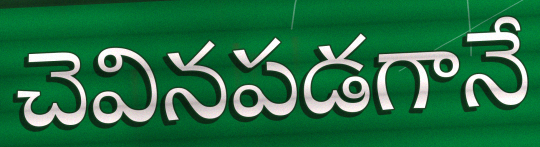
చెవినపడగానే